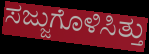
ಸಜ್ಜುಗೊಳಿಸಿತ್ತು